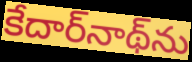
కేదార్‌నాథ్‌ను